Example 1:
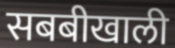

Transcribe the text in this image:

सबबीखाली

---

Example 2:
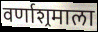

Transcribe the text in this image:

वर्णाश्रमाला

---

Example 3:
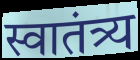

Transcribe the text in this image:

स्वातंत्र्य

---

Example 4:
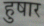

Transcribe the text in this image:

हुषार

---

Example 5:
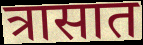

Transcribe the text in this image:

त्रासात